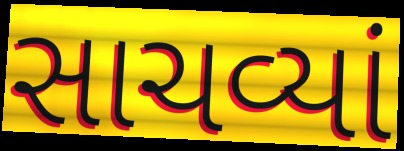
સાચવ્યાં